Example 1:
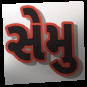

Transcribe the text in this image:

સેમુ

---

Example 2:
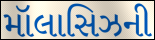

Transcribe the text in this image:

મૉલાસિઝની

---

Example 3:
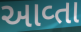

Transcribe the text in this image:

આવ્તા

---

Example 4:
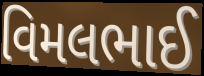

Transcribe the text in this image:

વિમલભાઈ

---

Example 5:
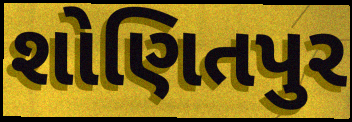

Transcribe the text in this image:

શોણિતપુર